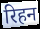
रिहन